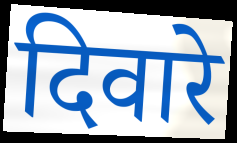
दिवारे